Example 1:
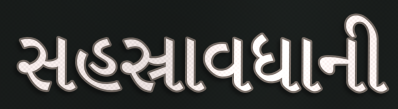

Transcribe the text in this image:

સહસ્રાવધાની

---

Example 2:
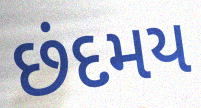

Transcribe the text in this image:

છંદમય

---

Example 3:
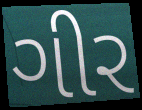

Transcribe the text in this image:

ગીર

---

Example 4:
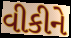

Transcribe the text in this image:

વીકીને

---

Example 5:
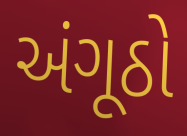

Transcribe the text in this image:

અંગૂઠો